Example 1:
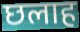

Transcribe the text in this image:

छलाह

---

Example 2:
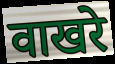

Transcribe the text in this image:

वाखरे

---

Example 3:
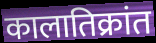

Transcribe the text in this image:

कालातिक्रांत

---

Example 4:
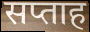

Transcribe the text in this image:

सप्‍ताह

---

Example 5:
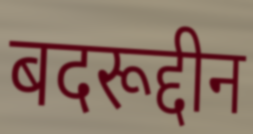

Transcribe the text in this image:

बदरूद्दीन